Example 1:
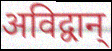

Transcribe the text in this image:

अविद्वान्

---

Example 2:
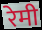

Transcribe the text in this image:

रेमी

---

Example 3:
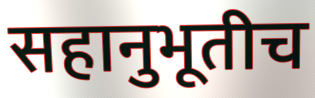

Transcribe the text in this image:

सहानुभूतीच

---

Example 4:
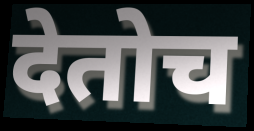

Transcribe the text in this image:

देतोच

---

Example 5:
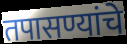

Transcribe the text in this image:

तपासण्यांचे